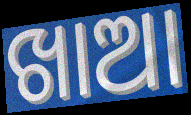
ଖାଆ